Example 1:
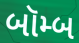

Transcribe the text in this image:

બૉમ્બ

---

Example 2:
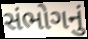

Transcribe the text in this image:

સંભોગનું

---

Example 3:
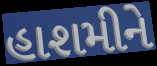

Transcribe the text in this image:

હાશમીને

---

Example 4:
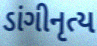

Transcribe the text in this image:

ડાંગીનૃત્ય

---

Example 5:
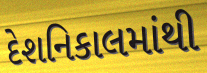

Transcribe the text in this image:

દેશનિકાલમાંથી